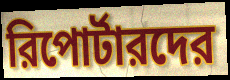
রিপোর্টারদের